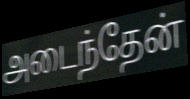
அடைந்தேன்